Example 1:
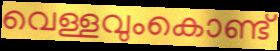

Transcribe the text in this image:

വെള്ളവുംകൊണ്ട്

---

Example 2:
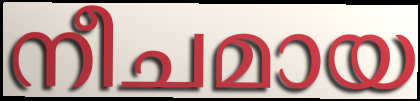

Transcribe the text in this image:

നീചമായ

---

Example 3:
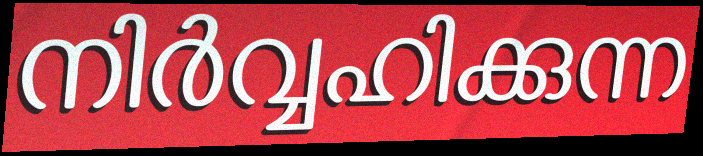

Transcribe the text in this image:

നിർവ്വഹിക്കുന്ന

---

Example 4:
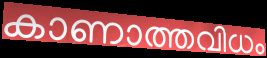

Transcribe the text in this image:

കാണാത്തവിധം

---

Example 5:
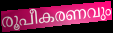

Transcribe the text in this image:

രൂപീകരണവും